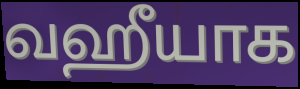
வஹீயாக